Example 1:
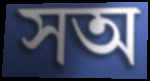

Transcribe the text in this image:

সঅ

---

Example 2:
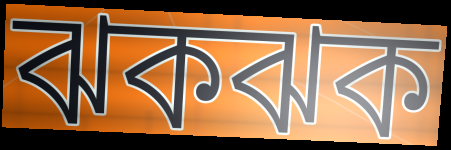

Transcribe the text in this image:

ঝকঝক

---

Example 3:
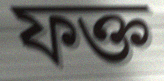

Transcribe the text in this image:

ফক্ত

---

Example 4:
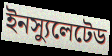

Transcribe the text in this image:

ইনস্যুলেটেড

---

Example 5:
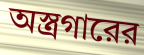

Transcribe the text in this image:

অস্ত্রগারের